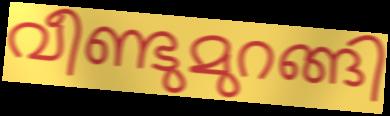
വീണ്ടുമുറങ്ങി